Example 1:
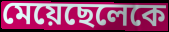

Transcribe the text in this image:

মেয়েছেলেকে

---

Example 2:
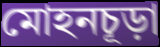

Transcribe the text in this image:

মোহনচূড়া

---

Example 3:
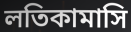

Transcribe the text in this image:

লতিকামাসি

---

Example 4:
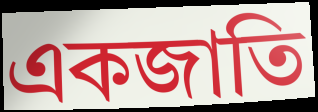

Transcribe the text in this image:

একজাতি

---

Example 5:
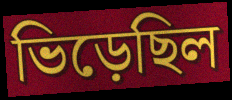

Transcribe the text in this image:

ভিড়েছিল